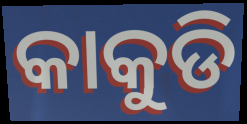
କାକୁଡି